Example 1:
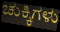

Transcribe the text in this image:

ಚುಕ್ಕಿಗಳು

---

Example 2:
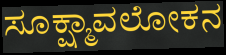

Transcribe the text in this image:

ಸೂಕ್ಷ್ಮಾವಲೋಕನ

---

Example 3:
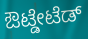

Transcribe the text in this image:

ಔಟ್ಡೇಟೆಡ್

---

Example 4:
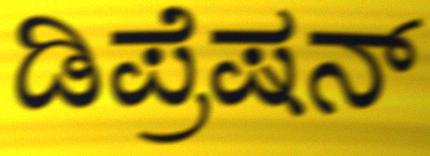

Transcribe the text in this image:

ಡಿಪ್ರೆಷನ್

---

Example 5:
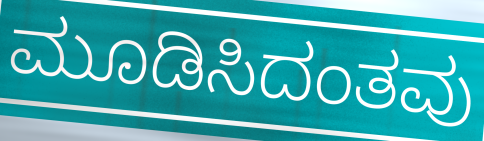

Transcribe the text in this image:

ಮೂಡಿಸಿದಂತವು